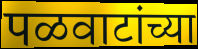
पळवाटांच्या